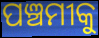
ପଞ୍ଚମୀକୁ